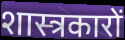
शास्त्रकारों